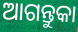
ଆଗନ୍ତୁକା